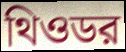
থিওডর